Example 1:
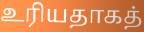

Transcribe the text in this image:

உரியதாகத்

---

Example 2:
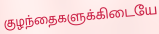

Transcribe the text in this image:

குழந்தைகளுக்கிடையே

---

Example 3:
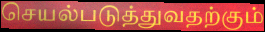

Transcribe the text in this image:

செயல்படுத்துவதற்கும்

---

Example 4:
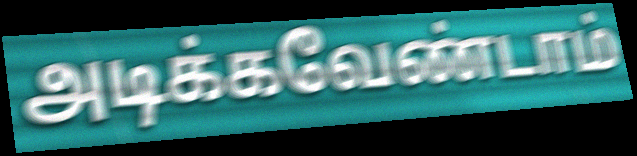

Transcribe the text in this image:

அடிக்கவேண்டாம்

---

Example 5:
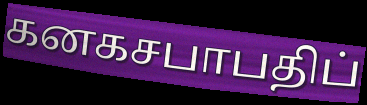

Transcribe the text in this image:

கனகசபாபதிப்